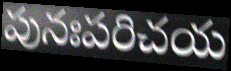
పునఃపరిచయ